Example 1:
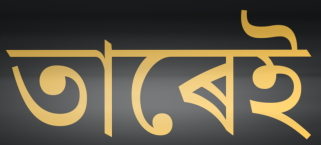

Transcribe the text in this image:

তাৰেই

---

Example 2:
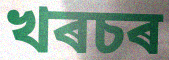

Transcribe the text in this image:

খৰচৰ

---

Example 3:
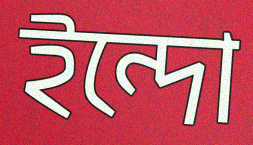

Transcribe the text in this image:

ইন্দো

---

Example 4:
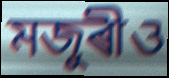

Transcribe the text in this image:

মজুৰীও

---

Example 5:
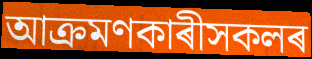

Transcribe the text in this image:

আক্ৰমণকাৰীসকলৰ